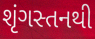
શૃંગસ્તનથી